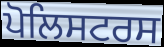
ਪੋਲਿਸਟਰਸ